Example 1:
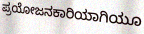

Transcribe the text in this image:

ಪ್ರಯೋಜನಕಾರಿಯಾಗಿಯೂ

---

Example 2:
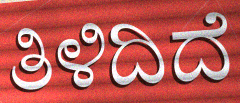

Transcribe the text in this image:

ತಿಳಿದಿದೆ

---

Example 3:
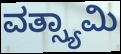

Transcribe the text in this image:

ವತ್ಸ್ಯಾಮಿ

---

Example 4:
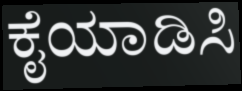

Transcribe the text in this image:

ಕೈಯಾಡಿಸಿ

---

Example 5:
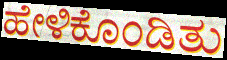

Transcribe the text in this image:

ಹೇಳಿಕೊಂಡಿತು